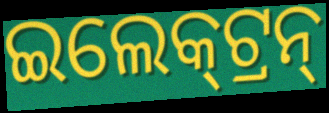
ଇଲେକ୍‌ଟ୍ରନ୍